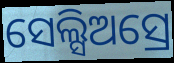
ସେଲ୍ସିଅସ୍ରେ